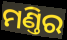
ମଣ୍ତିର